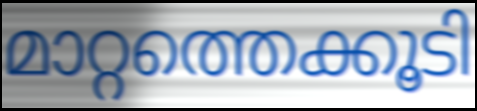
മാറ്റത്തെക്കൂടി